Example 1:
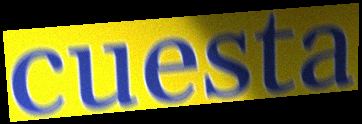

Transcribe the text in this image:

cuesta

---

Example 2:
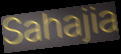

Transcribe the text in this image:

Sahajia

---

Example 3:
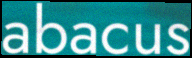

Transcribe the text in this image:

abacus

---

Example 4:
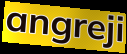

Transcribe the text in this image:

angreji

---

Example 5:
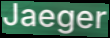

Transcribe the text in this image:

Jaeger